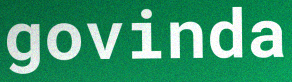
govinda